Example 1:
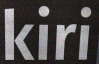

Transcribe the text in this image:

kiri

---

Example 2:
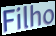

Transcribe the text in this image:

Filho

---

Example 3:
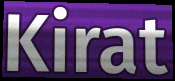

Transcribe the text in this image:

Kirat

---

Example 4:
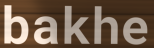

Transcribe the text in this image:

bakhe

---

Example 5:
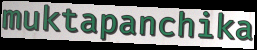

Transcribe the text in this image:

muktapanchika